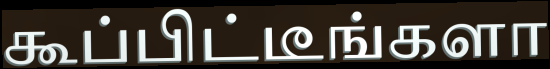
கூப்பிட்டீங்களா